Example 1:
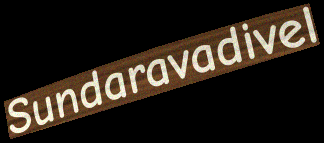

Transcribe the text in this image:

Sundaravadivel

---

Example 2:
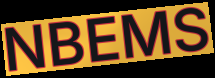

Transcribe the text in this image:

NBEMS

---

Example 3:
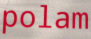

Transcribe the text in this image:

polam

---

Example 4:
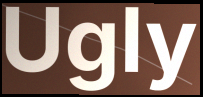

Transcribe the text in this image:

Ugly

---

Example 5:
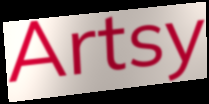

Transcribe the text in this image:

Artsy